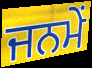
ਜਨਮੇਂ